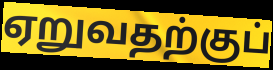
ஏறுவதற்குப்